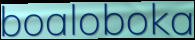
boaloboka